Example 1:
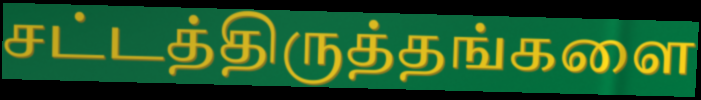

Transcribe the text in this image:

சட்டத்திருத்தங்களை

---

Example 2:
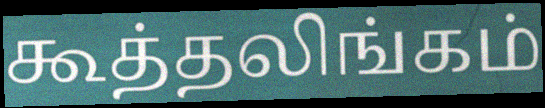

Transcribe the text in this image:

கூத்தலிங்கம்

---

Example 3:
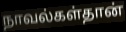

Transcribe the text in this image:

நாவல்கள்தான்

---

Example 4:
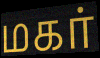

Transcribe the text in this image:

மகர்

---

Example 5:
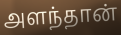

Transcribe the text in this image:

அளந்தான்